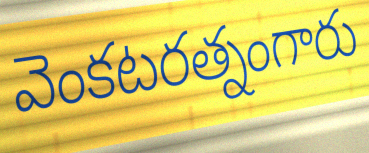
వెంకటరత్నంగారు